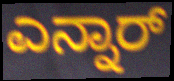
ಎನ್ನಾರ್